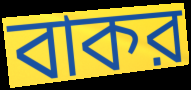
বাকর